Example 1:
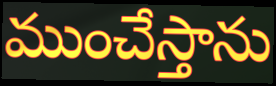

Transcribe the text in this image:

ముంచేస్తాను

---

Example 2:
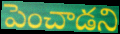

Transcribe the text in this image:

పెంచాడని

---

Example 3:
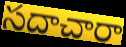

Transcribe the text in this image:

సదాచారా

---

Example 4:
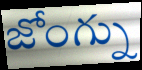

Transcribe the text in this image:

జోంగ్ను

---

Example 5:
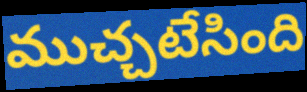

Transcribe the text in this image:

ముచ్చటేసింది